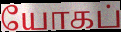
யோகப்